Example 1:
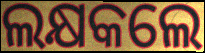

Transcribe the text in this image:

ଲକ୍ଷକଲେ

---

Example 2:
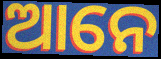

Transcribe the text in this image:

ଆନେ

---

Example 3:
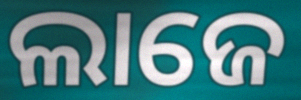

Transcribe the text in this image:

ଲାଜେ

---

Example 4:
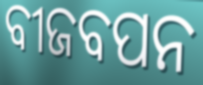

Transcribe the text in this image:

ବୀଜବପନ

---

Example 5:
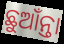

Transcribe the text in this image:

ଛୁଆଁନ୍ତା